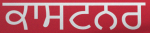
ਕਾਸਟਨਰ